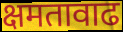
क्षमतावाढ